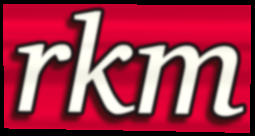
rkm